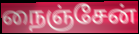
நைஞ்சேன்